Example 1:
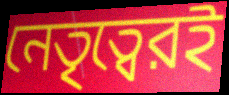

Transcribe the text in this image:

নেতৃত্বেরই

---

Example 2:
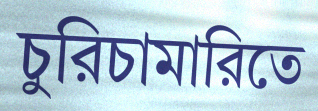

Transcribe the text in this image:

চুরিচামারিতে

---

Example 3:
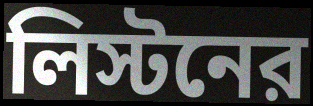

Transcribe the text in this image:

লিস্টনের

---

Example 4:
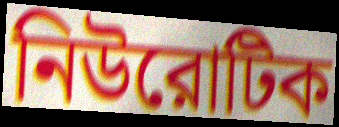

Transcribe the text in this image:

নিউরোটিক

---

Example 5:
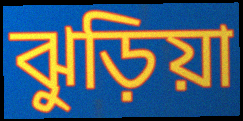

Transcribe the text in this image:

ঝুড়িয়া